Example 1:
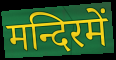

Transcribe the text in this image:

मन्दिरमें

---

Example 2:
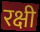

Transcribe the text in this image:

रक्षी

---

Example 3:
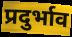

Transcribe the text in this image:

प्रदुर्भाव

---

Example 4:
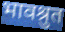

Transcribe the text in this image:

भावश्रुत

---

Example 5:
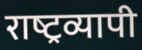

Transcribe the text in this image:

राष्ट्रव्यापी